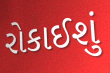
રોકાઈશું